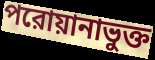
পরোয়ানাভুক্ত